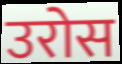
उरोस